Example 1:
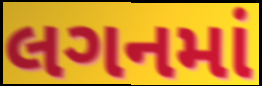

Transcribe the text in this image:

લગનમાં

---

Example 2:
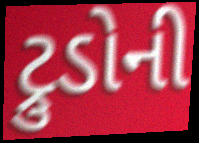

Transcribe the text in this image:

ટ્રુડોની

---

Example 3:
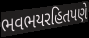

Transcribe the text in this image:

ભવભયરહિતપણે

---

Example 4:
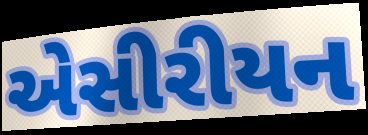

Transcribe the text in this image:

એસીરીયન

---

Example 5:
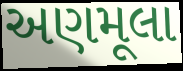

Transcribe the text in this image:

અણમૂલા